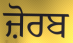
ਜ਼ੋਰਬ